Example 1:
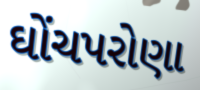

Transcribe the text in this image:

ઘોંચપરોણા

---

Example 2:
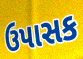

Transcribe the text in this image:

ઉપાસક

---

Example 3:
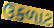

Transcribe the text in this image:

ઉકળાટ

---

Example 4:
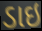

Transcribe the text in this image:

ડાઇ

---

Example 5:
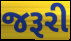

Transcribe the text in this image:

જરૂરી